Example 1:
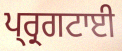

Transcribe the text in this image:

ਪ੍ਰ੍ਰਗਟਾਈ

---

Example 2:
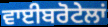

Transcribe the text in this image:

ਵਾਈਬਰੋਟੇਲਾਂ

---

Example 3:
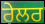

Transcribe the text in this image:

ਰੇਲਰ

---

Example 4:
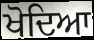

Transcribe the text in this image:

ਖੋਦਿਆ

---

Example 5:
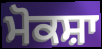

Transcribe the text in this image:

ਮੋਕਸ਼ਾ